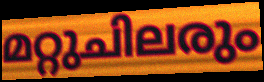
മറ്റുചിലരും